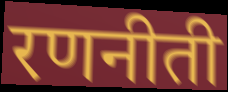
रणनीती